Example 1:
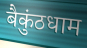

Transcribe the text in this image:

बैकुंठधाम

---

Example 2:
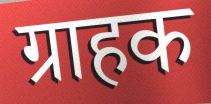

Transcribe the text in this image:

ग्राहक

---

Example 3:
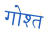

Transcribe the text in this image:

गोश्त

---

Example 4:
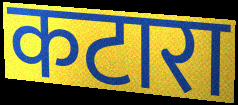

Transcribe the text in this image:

कटारा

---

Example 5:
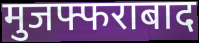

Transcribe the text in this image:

मुजफ्फराबाद